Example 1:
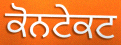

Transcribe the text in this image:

ਕੋਨਟੇਕਟ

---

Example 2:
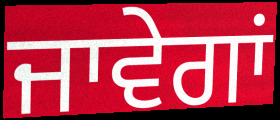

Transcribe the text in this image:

ਜਾਵੇਗਾਂ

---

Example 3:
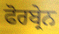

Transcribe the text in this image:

ਫੋਰਬ੍ਰੇਨ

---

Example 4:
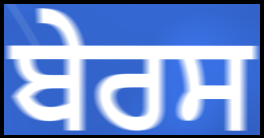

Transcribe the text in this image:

ਬੇਰਸ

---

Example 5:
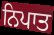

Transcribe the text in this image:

ਨਿਪਾਤ